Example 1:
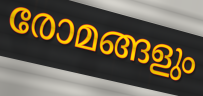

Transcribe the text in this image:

രോമങ്ങളും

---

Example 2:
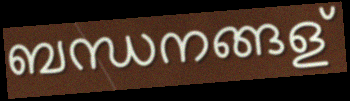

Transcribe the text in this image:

ബന്ധനങ്ങള്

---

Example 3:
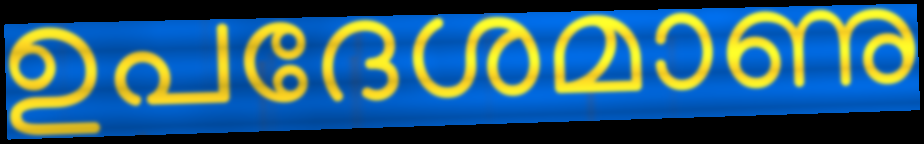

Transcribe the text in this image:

ഉപദേശമാണു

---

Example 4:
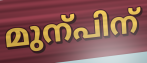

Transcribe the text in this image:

മുന്പിന്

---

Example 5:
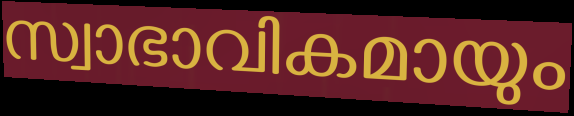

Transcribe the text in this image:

സ്വാഭാവികമായും